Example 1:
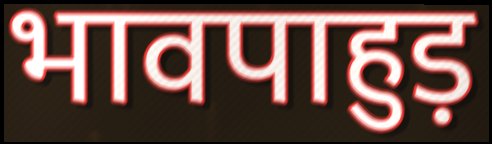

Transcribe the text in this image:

भावपाहुड़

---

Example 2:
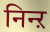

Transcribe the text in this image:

निन्ऱ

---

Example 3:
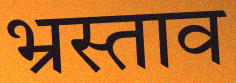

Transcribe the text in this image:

भ्रस्ताव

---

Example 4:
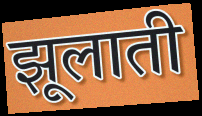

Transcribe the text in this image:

झूलाती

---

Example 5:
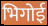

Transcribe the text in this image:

भिगोई